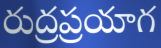
రుద్రప్రయాగ